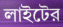
লাইটের